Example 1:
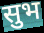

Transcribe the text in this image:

सुभ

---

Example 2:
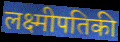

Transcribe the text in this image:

लक्ष्मीपतिकी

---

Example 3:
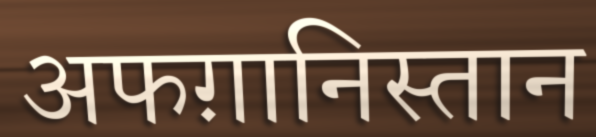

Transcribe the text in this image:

अफग़ानिस्तान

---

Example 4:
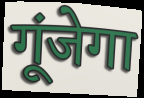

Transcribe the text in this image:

गूंजेगा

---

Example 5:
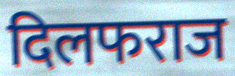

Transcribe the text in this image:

दिलफराज